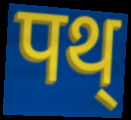
पथ्